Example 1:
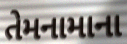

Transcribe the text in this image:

તેમનામાના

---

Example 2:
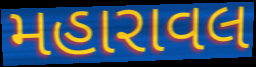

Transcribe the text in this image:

મહારાવલ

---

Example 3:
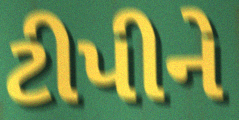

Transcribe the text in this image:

ટીપીને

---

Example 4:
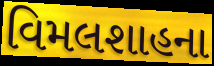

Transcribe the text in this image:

વિમલશાહના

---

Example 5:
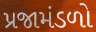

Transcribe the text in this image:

પ્રજામંડળો